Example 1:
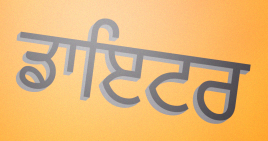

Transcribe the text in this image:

ਡਾਇਟਰ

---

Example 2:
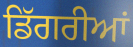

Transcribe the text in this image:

ਡਿੱਗਰੀਆਂ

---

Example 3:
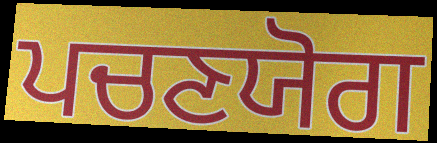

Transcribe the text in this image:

ਪਚਣਯੋਗ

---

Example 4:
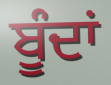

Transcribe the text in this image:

ਬੂੰਦਾਂ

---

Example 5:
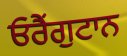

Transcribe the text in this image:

ਓਰੈਂਗੁਟਾਨ